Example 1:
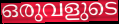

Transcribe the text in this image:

ഒരുവളുടെ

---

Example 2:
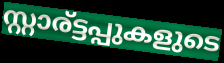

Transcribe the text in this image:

സ്റ്റാര്ട്ടപ്പുകളുടെ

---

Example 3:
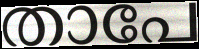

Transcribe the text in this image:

താപേ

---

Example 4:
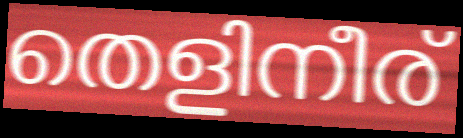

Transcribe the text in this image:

തെളിനീര്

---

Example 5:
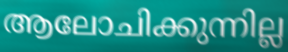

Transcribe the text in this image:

ആലോചിക്കുന്നില്ല